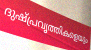
ദുഷ്പ്രവൃത്തികളെയും